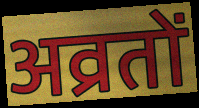
अव्रतों